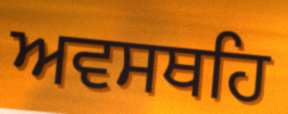
ਅਵਸਥਹਿ